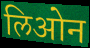
लिओन